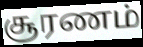
சூரணம்